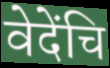
वेदेंचि